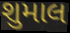
શુમાલ